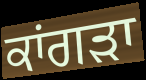
ਕਾਂਗੜਾ